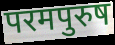
परमपुरुष